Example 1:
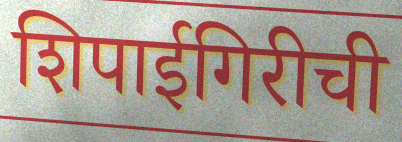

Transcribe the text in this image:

शिपाईगिरीची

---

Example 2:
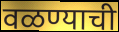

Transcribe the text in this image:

वळण्याची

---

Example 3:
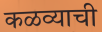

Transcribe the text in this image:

कळव्याची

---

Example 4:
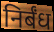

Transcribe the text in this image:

निर्बंध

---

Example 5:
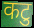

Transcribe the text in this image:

कटु